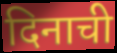
दिनाची